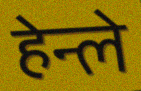
हेन्ले